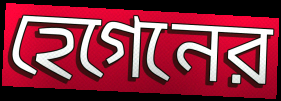
হেগেনের